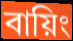
বায়িং